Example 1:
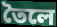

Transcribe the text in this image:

তৈলে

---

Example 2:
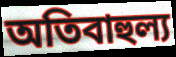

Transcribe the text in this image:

অতিবাহুল্য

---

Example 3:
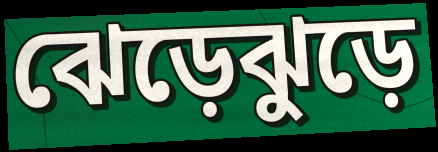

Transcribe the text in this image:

ঝেড়েঝুড়ে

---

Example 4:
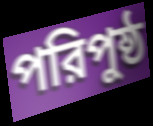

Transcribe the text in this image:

পরিপুষ্ঠ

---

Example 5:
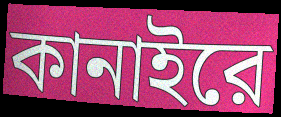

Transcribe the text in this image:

কানাইরে